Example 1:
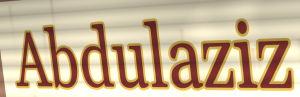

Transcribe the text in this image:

Abdulaziz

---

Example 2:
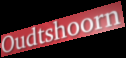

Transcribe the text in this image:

Oudtshoorn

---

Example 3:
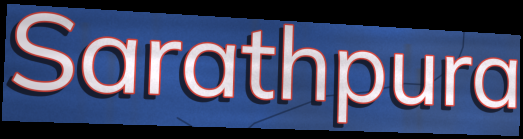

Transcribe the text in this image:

Sarathpura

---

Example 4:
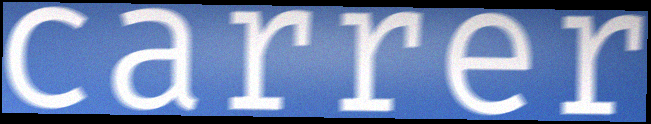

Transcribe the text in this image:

carrer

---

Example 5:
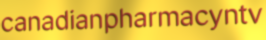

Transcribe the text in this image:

canadianpharmacyntv